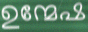
ഉന്മേഷ